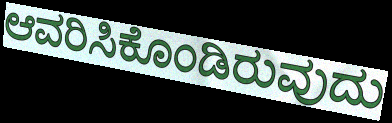
ಆವರಿಸಿಕೊಂಡಿರುವುದು